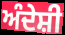
ਅੰਦੇਸ਼ੀ